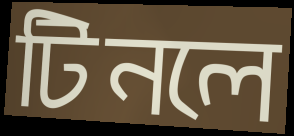
টিনলে